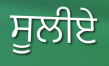
ਸੂਲੀਏ